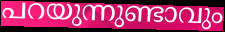
പറയുന്നുണ്ടാവും